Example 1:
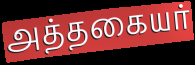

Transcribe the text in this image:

அத்தகையர்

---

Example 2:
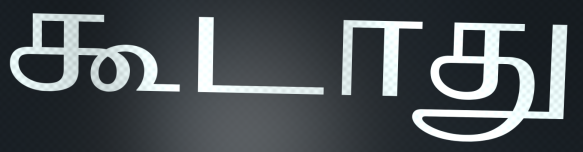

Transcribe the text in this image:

கூடாது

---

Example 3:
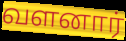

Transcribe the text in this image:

வளனார்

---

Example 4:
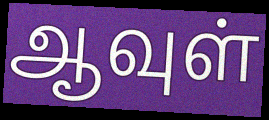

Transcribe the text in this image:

ஆவுள்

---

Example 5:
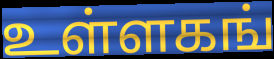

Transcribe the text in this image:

உள்ளகங்